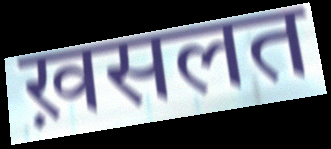
ख़सलत